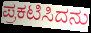
ಪ್ರಕಟಿಸಿದನು